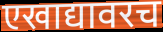
एखाद्यावरच